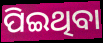
ପିଇଥିବା